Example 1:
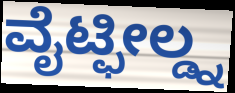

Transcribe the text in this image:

ವೈಟ್ಫೀಲ್ಡ್ನ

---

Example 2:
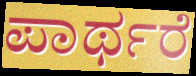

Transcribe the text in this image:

ಪಾರ್ಥರೆ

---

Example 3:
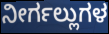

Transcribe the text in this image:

ನೀರ್ಗಲ್ಲುಗಳ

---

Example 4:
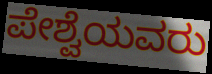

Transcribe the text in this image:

ಪೇಶ್ವೆಯವರು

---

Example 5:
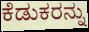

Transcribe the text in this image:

ಕೆಡುಕರನ್ನು